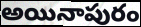
అయినాపురం